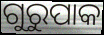
ଗୁରୁପାକ